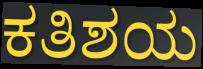
ಕತಿಶಯ